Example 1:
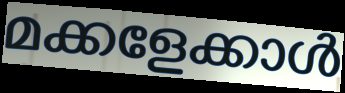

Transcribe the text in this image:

മക്കളേക്കാൾ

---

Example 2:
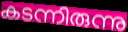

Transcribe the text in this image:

കടന്നിരുന്നു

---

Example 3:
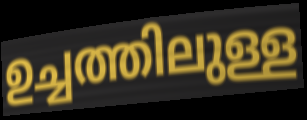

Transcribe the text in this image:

ഉച്ചത്തിലുള്ള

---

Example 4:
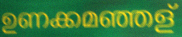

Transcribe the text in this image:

ഉണക്കമഞ്ഞള്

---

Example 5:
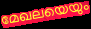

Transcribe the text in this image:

മേഖലയെയും